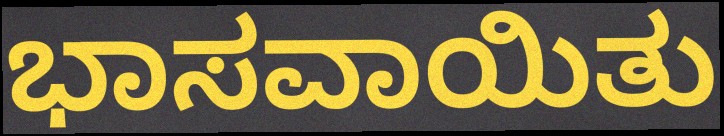
ಭಾಸವಾಯಿತು